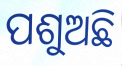
ପଶୁଅଛି